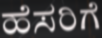
ಹೆಸರಿಗೆ